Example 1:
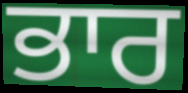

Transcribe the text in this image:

ਭਾਰ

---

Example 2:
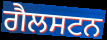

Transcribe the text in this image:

ਗੈਲਸਟਨ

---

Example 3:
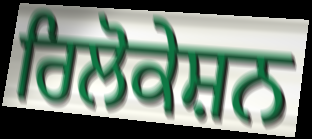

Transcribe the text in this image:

ਰਿਲੋਕੇਸ਼ਨ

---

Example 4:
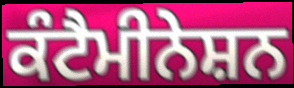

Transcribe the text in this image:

ਕੰਟੈਮੀਨੇਸ਼ਨ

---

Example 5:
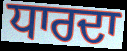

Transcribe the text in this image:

ਧਾਰਦਾ